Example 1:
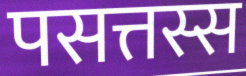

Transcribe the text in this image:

पसत्तस्स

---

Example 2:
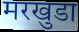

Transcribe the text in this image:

मरखुडा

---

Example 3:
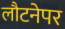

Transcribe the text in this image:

लौटनेपर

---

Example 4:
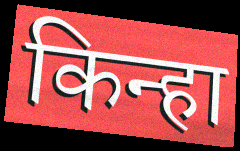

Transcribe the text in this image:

किन्हा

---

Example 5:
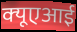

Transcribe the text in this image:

क्यूएआई